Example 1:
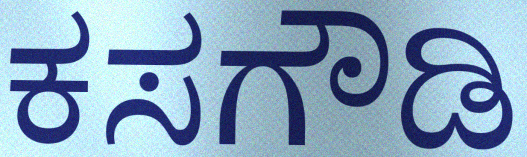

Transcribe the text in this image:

ಕಸಗೌಡಿ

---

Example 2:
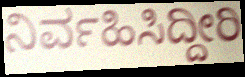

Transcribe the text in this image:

ನಿರ್ವಹಿಸಿದ್ದೀರಿ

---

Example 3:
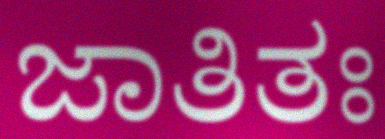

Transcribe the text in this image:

ಜಾತಿತಃ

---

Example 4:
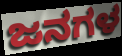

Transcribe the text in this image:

ಜನಗಳ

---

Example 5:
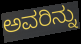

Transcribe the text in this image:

ಅವರಿನ್ನು